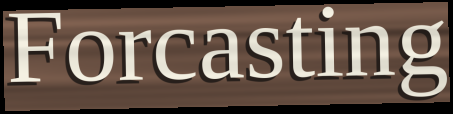
Forcasting